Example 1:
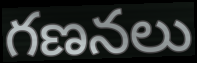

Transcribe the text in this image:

గణనలు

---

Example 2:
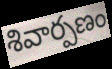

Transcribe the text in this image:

శివార్పణం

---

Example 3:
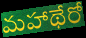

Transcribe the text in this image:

మహాథేరో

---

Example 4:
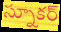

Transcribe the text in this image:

స్నూకర్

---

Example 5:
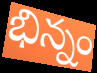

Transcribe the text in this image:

భిన్నం